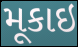
મૂકાઇ